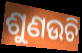
ଶୁଣଉଚି